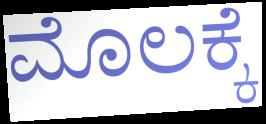
ಮೊಲಕ್ಕೆ